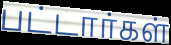
பட்டார்கள்